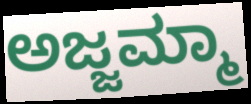
ಅಜ್ಜಮ್ಮಾ